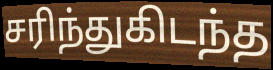
சரிந்துகிடந்த